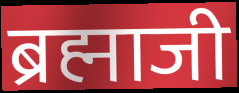
ब्रह्माजी